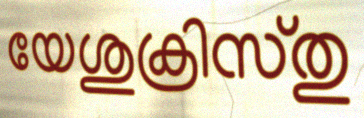
യേശുക്രിസ്തു